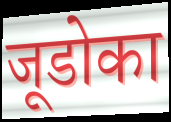
जूडोका